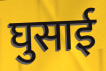
घुसाई